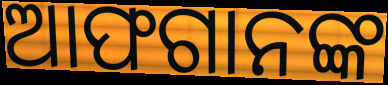
ଆଫଗାନଙ୍କ